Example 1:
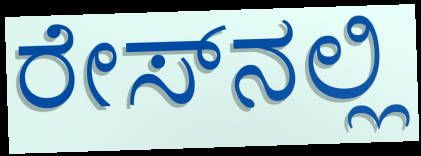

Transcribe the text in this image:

ರೇಸ್‍ನಲ್ಲಿ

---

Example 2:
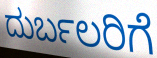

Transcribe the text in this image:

ದುರ್ಬಲರಿಗೆ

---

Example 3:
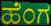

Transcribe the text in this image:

ಹೆಂಗ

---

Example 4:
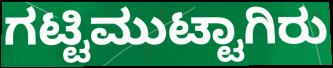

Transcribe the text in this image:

ಗಟ್ಟಿಮುಟ್ಟಾಗಿರು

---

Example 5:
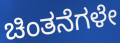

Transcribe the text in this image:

ಚಿಂತನೆಗಳೇ